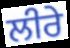
ਲੀਰੇ